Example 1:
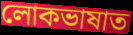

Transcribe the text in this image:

লোকভাষাত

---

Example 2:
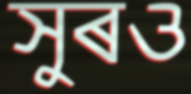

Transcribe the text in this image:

সুৰও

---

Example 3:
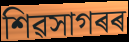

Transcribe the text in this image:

শিৱসাগৰৰ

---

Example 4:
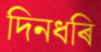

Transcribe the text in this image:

দিনধৰি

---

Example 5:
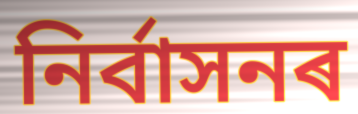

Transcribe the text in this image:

নিৰ্বাসনৰ